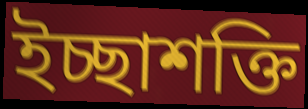
ইচ্ছাশক্তি